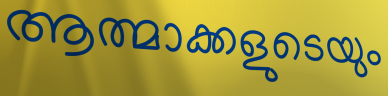
ആത്മാക്കളുടെയും